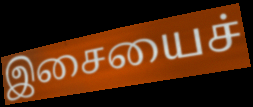
இசையைச்